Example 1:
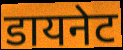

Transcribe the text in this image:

डायनेट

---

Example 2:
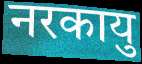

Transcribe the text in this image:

नरकायु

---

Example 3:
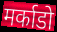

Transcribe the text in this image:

मर्काडो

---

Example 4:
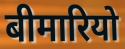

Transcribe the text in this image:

बीमारियो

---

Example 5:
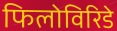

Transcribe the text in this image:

फिलोविरिडे